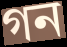
গন